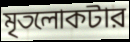
মৃতলোকটার